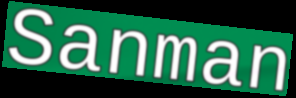
Sanman